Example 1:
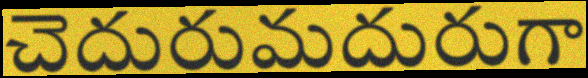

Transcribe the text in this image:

చెదురుమదురుగా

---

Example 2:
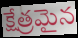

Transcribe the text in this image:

క్షేత్రమైన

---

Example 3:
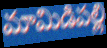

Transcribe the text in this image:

మామిడిపల్లి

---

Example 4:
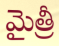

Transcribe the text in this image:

మైత్రీ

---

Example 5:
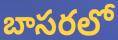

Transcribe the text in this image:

బాసరలో